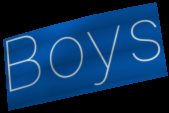
Boys